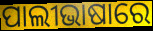
ପାଲୀଭାଷାରେ